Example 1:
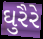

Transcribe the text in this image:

ઘુરૈરે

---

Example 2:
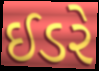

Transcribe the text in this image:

ઈડરે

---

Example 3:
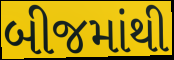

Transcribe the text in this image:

બીજમાંથી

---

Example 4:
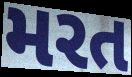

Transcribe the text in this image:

મરત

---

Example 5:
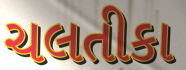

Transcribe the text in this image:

ચલતીકા